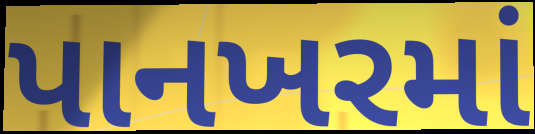
પાનખરમાં